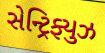
સેન્ટ્રિફ્યુઝ